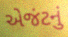
એજંટનું